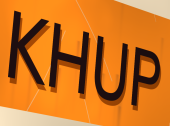
KHUP